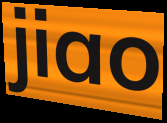
jiao